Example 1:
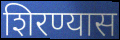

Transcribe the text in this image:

शिरण्यास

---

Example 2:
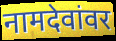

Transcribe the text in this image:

नामदेवांवर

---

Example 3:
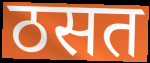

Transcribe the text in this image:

ठसत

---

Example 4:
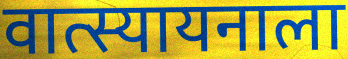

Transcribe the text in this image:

वात्स्यायनाला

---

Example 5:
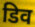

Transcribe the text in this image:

डिव